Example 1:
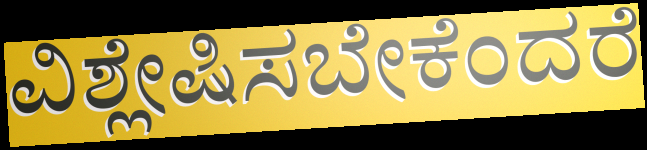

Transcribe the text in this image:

ವಿಶ್ಲೇಷಿಸಬೇಕೆಂದರೆ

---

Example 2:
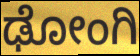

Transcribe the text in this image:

ಢೋಂಗಿ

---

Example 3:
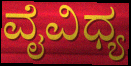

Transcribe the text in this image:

ವೈವಿಧ್ಯ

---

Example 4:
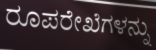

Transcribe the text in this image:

ರೂಪರೇಖೆಗಳನ್ನು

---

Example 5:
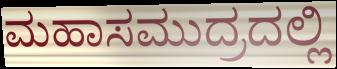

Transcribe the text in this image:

ಮಹಾಸಮುದ್ರದಲ್ಲಿ